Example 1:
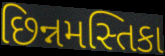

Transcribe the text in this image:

છિન્નમસ્તિકા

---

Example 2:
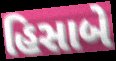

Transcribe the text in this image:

હિસાબે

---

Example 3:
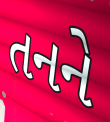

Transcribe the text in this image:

તનને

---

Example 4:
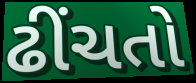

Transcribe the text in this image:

ઢીંચતો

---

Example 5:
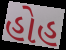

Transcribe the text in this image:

હોહ